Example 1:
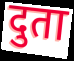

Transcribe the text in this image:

दुता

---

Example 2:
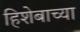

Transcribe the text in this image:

हिशेबाच्या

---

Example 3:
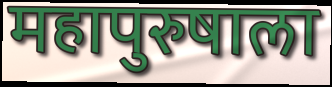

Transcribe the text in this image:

महापुरुषाला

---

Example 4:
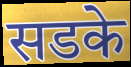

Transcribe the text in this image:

सडके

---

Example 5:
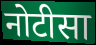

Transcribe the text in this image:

नोटीसा